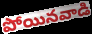
పోయినవాడి